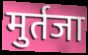
मुर्तजा